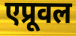
एप्रूवल